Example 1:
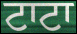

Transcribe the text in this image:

ਟਾਟਾ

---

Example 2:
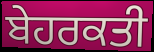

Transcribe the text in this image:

ਬੇਹਰਕਤੀ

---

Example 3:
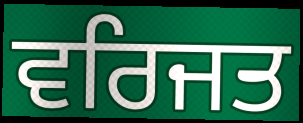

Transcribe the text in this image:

ਵਰਿਜਤ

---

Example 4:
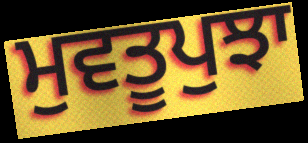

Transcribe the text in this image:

ਮੁਵਤੂਪੁਝਾ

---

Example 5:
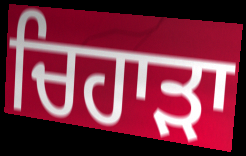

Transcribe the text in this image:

ਚਿਹਾੜਾ